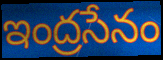
ఇంద్రసేనం